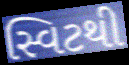
સ્વિટથી